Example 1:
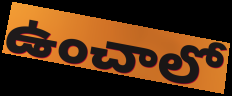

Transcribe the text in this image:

ఉంచాలో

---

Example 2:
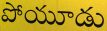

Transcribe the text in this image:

పోయూడు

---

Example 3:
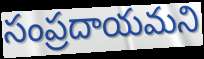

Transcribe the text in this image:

సంప్రదాయమని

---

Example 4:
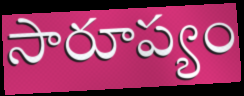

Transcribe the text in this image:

సారూప్యం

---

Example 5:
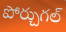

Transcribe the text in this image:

పోర్చుగల్